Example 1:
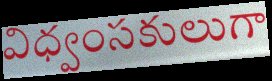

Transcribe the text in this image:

విధ్వంసకులుగా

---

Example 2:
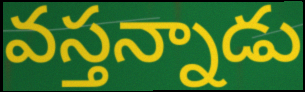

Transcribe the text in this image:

వస్తన్నాడు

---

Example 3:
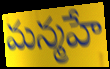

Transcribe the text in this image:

మన్మహే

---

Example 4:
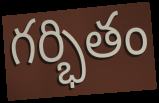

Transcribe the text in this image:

గర్భితం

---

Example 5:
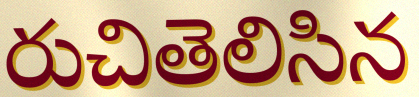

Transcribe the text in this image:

రుచితెలిసిన